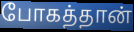
போகத்தான்